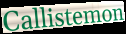
Callistemon